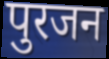
पुरजन